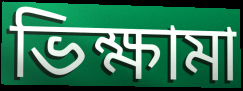
ভিক্ষামা